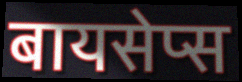
बायसेप्स